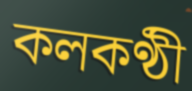
কলকণ্ঠী